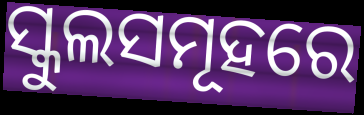
ସ୍କୁଲସମୂହରେ